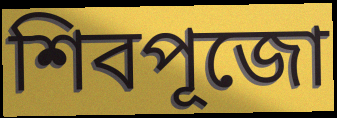
শিবপূজো